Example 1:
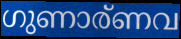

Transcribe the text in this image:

ഗുണാര്ണവ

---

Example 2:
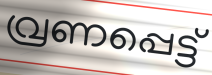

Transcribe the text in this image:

വ്രണപ്പെട്ട്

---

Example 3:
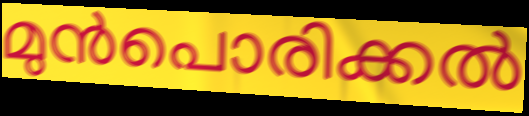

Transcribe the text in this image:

മുൻപൊരിക്കൽ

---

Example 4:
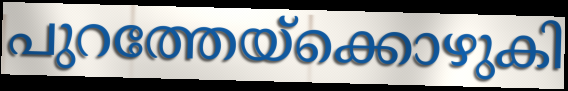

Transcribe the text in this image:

പുറത്തേയ്ക്കൊഴുകി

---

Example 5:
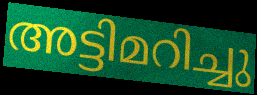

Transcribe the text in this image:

അട്ടിമറിച്ചു